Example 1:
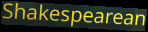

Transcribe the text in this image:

Shakespearean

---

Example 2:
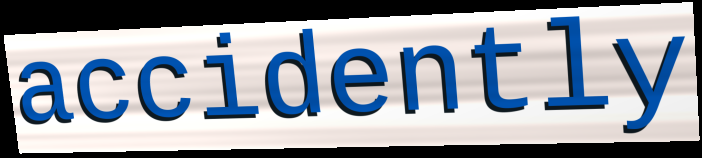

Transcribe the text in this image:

accidently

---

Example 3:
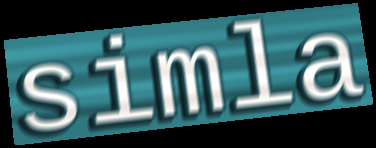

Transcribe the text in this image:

simla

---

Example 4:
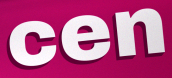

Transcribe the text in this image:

cen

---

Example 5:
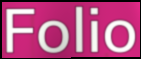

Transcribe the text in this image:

Folio